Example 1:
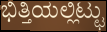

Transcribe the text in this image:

ಭಿತ್ತಿಯಲ್ಲಿಟ್ಟು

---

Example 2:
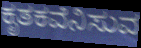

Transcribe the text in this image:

ಕೃತಕವೆನಿಸುವ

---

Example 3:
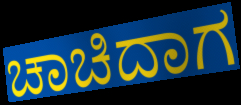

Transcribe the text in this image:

ಚಾಚಿದಾಗ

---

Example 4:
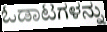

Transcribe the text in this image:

ಓಡಾಟಗಳನ್ನು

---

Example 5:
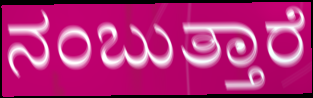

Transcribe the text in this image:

ನಂಬುತ್ತಾರೆ